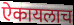
ऐकायलाच